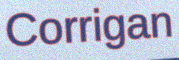
Corrigan